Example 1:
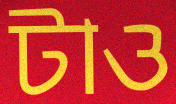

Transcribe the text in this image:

টাও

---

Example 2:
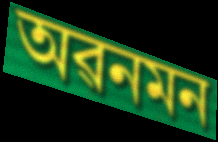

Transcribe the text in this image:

অৱনমন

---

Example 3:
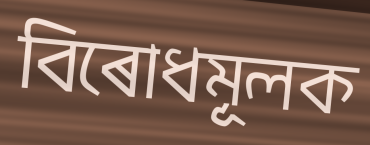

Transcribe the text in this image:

বিৰোধমূলক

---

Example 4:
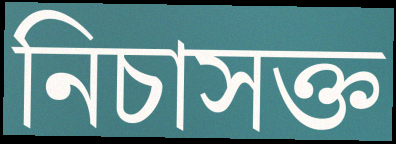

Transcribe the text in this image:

নিচাসক্ত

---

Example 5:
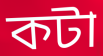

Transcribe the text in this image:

কটা